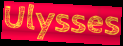
Ulysses